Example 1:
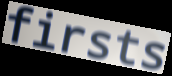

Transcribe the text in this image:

firsts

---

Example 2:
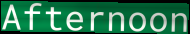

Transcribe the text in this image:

Afternoon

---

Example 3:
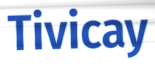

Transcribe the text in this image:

Tivicay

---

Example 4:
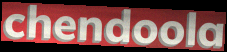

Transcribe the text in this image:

chendoola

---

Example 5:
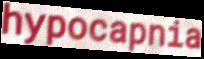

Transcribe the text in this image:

hypocapnia